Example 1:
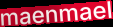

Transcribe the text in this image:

maenmael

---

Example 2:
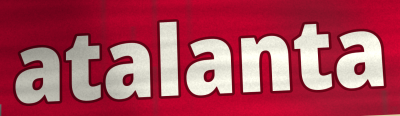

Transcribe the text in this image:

atalanta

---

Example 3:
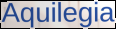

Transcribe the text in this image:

Aquilegia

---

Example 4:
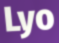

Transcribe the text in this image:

Lyo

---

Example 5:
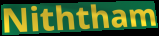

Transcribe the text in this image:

Niththam